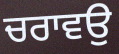
ਚਰਾਵਉ